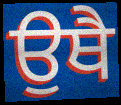
ਉਥੈ